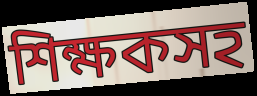
শিক্ষকসহ